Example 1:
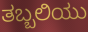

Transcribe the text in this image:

ತಬ್ಬಲಿಯು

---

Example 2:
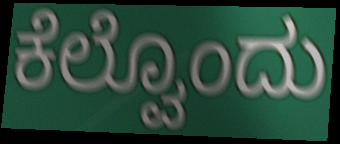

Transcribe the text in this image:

ಕೆಲ್ವೊಂದು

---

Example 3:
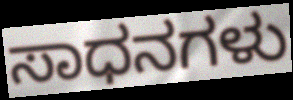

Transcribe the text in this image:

ಸಾಧನಗಳು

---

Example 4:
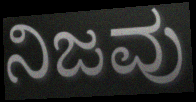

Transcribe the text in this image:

ನಿಜವು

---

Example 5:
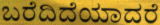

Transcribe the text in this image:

ಬರೆದಿದೆಯಾದರೆ